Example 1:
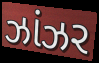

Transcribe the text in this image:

ઝાંઝર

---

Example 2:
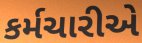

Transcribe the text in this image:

કર્મચારીએ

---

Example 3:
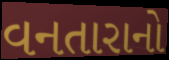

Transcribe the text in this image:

વનતારાનો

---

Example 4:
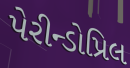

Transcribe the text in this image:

પેરીન્ડોપ્રિલ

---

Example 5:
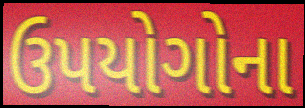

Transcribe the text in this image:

ઉપયોગોના